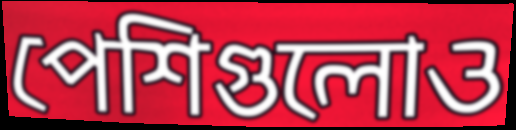
পেশিগুলোও